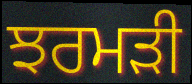
ਝਰਮੜੀ